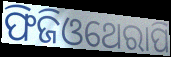
ଫିଜିଓଥେରାପି